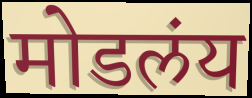
मोडलंय